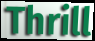
Thrill